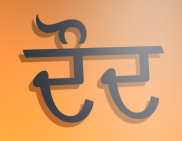
ਦੌਦ